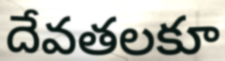
దేవతలకూ